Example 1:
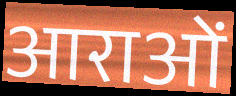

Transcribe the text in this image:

आराओं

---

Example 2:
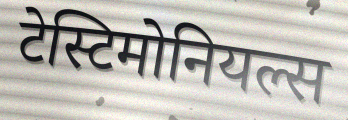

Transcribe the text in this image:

टेस्टिमोनियल्स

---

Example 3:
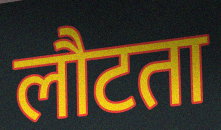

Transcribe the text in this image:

लौटता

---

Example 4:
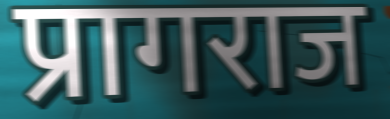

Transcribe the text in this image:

प्रागराज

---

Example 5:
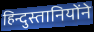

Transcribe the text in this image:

हिन्दुस्तानियोंने